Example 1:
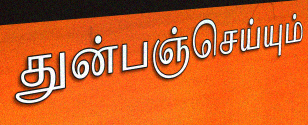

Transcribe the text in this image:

துன்பஞ்செய்யும்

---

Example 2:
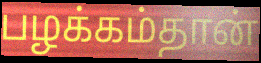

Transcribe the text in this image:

பழக்கம்தான்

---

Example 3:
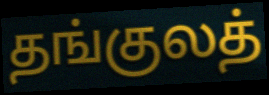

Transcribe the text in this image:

தங்குலத்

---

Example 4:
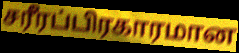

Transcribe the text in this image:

சரீரப்பிரகாரமான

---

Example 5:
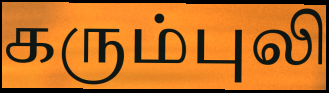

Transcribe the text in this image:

கரும்புலி